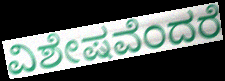
ವಿಶೇಷವೆಂದರೆ